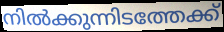
നിൽക്കുന്നിടത്തേക്ക്